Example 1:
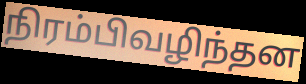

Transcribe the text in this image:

நிரம்பிவழிந்தன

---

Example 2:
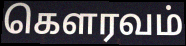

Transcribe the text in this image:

கெளரவம்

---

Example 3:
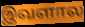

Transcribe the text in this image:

இவளால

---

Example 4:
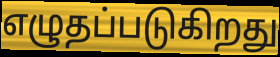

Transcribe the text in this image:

எழுதப்படுகிறது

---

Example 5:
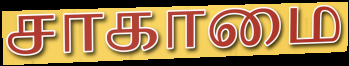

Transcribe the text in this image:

சாகாமை